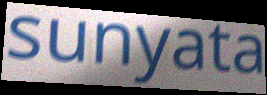
sunyata